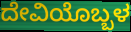
ದೇವಿಯೊಬ್ಬಳ